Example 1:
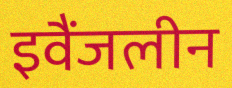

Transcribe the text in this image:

इवैंजलीन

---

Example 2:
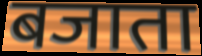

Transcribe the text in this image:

बजाता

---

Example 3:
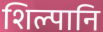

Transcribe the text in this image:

शिल्पानि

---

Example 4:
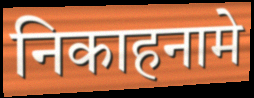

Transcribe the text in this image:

निकाहनामे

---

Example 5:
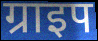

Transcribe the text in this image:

ग्राइप